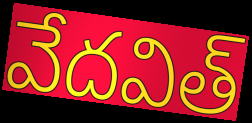
వేదవిత్